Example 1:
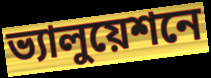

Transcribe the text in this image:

ভ্যালুয়েশনে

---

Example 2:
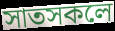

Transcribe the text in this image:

সাতসকলে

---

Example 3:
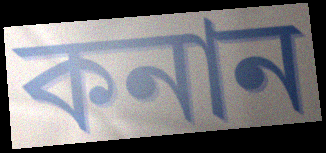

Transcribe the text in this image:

কনান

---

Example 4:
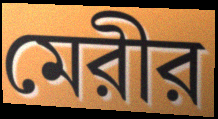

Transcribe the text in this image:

মেরীর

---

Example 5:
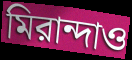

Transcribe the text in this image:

মিরান্দাও